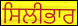
ਸਿਲੀਭਾਰ